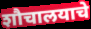
शौचालयाचे